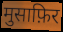
मुसाफ़िर